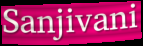
Sanjivani